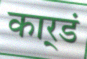
कार्डं